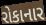
રોકાનાર